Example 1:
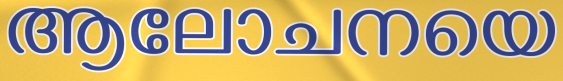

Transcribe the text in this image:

ആലോചനയെ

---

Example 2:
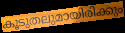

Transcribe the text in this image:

കൂടുതലുമായിരിക്കും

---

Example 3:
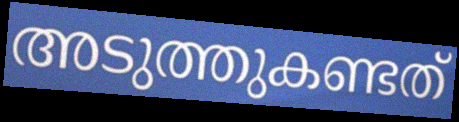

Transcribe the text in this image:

അടുത്തുകണ്ടത്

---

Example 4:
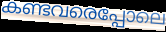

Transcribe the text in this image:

കണ്ടവരെപ്പോലെ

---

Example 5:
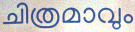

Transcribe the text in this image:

ചിത്രമാവും